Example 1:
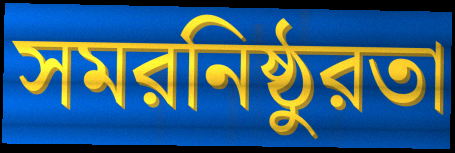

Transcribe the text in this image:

সমরনিষ্ঠুরতা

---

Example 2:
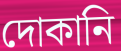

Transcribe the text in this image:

দোকানি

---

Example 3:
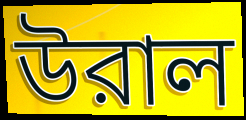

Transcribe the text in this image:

উরাল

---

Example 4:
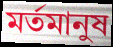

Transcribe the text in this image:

মর্তমানুষ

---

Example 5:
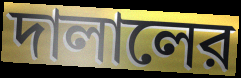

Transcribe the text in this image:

দালালের